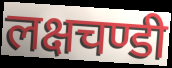
लक्षचण्डी